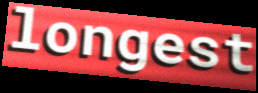
longest